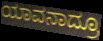
ಯಾವನಾದ್ರೂ